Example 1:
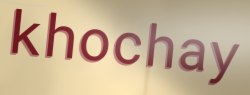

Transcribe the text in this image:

khochay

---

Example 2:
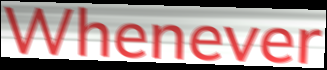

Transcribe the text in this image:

Whenever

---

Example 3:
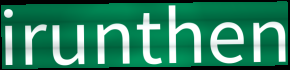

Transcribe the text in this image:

irunthen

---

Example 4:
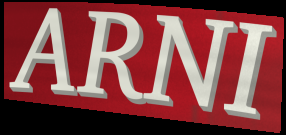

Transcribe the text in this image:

ARNI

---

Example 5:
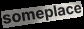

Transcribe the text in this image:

someplace